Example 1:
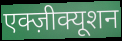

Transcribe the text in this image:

एक्ज़ीक्यूशन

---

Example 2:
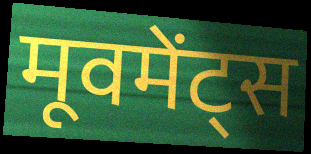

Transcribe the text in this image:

मूवमेंट्स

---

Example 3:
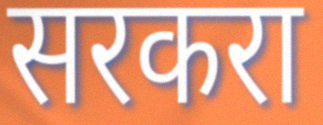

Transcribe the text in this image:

सरकरा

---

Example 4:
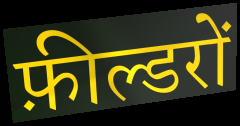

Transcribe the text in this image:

फ़ील्डरों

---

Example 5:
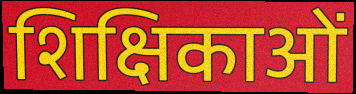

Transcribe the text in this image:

शिक्षिकाओं